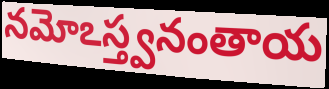
నమోఽస్త్వనంతాయ